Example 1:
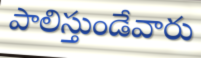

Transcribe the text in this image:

పాలిస్తుండేవారు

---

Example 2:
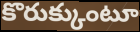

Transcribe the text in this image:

కొరుక్కుంటూ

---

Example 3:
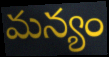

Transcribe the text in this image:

మన్యం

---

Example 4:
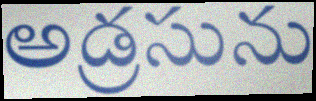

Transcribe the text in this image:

అడ్రసును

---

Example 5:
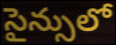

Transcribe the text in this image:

సైన్సులో